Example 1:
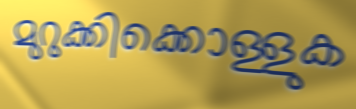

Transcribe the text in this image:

മുറുക്കിക്കൊള്ളുക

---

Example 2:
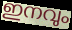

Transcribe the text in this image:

ഇനവും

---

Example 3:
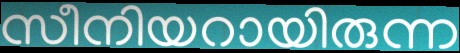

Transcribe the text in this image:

സീനിയറായിരുന്ന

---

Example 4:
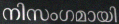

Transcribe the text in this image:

നിസംഗമായി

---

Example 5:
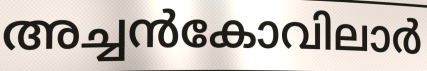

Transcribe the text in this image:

അച്ചൻകോവിലാർ